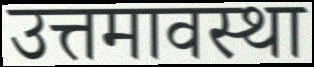
उत्तमावस्था